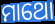
ମାଥୋ